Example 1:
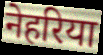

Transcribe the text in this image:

नेहरिया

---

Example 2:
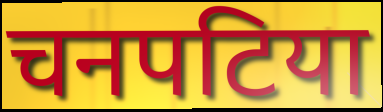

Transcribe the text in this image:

चनपटिया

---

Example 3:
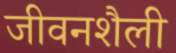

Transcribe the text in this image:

जीवनशैली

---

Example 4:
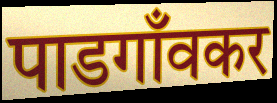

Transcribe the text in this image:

पाडगाँवकर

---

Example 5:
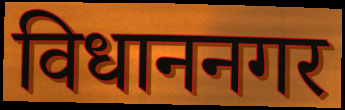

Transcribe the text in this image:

विधाननगर